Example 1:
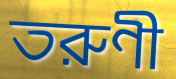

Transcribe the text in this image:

তৰুণী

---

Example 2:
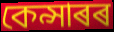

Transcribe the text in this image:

কেন্সাৰৰ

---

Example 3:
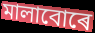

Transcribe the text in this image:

মালাবোৰে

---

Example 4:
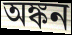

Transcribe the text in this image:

অঙ্কন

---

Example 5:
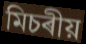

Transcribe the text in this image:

মিচৰীয়